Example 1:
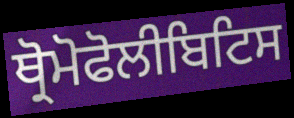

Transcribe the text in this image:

ਥ੍ਰੋਮੋਫੋਲੀਬਿਟਿਸ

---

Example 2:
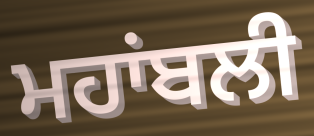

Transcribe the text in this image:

ਮਹਾਂਬਲੀ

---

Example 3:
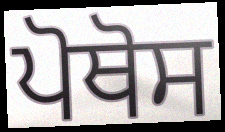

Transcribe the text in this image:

ਪੋਥੋਸ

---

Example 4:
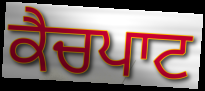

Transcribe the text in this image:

ਕੈਚਪਾਟ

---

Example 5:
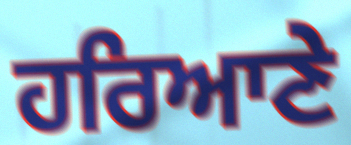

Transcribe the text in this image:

ਹਰਿਆਣੇ